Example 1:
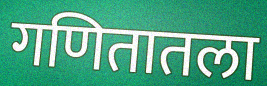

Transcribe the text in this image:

गणितातला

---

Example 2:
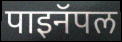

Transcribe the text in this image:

पाइनॅपल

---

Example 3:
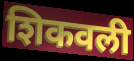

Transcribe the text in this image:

शिकवली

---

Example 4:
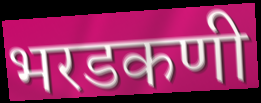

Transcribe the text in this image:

भरडकणी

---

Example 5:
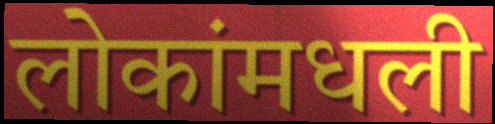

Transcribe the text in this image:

लोकांमधली